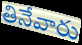
తినేవారు